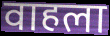
वाहला